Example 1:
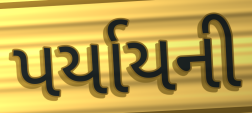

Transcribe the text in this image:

પર્યાયની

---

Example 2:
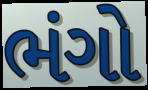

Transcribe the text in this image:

ભંગો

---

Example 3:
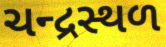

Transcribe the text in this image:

ચન્દ્રસ્થળ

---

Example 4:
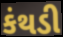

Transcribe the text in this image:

કંથડી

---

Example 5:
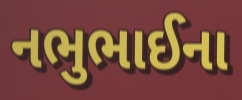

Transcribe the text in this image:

નભુભાઈના